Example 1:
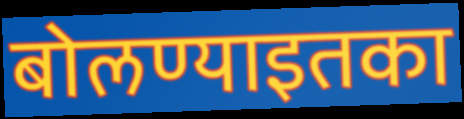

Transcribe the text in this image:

बोलण्याइतका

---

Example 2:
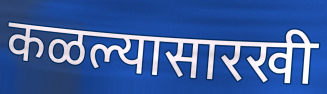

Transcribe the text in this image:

कळल्यासारखी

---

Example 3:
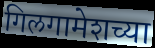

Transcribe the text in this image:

गिलगामेशच्या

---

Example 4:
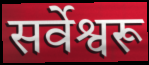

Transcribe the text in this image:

सर्वेश्वरू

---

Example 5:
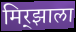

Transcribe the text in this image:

मिर्झाला